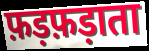
फ़ड़फ़ड़ाता